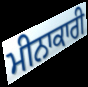
ਮੀਨਾਕਾਰੀ